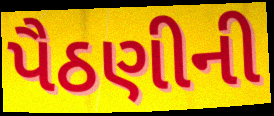
પૈઠણીની